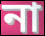
না